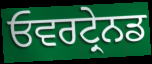
ਓਵਰਟ੍ਰੇਨਡ